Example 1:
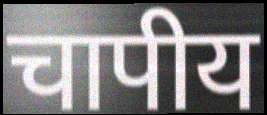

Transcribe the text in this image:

चापीय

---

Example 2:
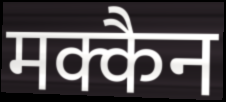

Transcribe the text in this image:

मक्कैन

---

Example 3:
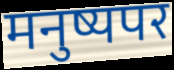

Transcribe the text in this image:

मनुष्यपर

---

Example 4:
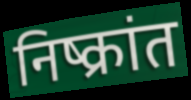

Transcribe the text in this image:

निष्क्रांत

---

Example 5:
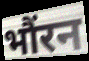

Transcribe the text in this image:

भौंरन